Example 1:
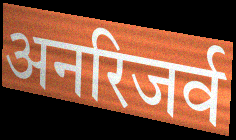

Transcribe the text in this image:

अनरिजर्व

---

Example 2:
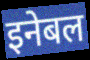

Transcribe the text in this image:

इनेबल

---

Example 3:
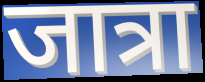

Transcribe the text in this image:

जात्रा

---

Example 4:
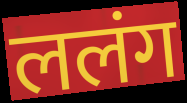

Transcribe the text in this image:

ललंग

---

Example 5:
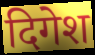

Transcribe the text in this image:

दिगेश